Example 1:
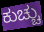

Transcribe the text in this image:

ಕುಚ್ಚು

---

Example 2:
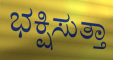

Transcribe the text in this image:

ಭಕ್ಷಿಸುತ್ತಾ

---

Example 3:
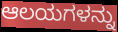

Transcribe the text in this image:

ಆಲಯಗಳನ್ನು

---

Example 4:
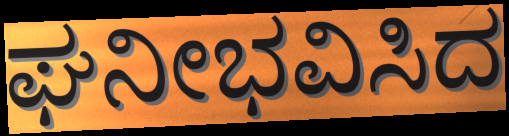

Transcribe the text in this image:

ಘನೀಭವಿಸಿದ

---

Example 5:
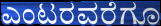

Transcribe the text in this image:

ಎಂಟರವರೆಗೂ